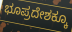
ಭೂಪ್ರದೇಶಕ್ಕೂ